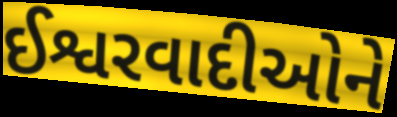
ઈશ્વરવાદીઓને